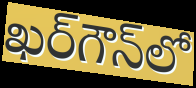
ఖర్‌గౌన్‌లో